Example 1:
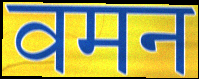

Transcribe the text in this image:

वमन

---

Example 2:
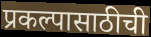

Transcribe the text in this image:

प्रकल्पासाठीची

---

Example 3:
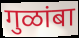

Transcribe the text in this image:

गुळांबा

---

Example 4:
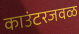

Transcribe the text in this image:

काउंटरजवळ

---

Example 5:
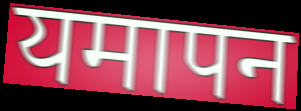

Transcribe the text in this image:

यमापन